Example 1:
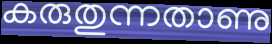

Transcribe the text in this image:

കരുതുന്നതാണു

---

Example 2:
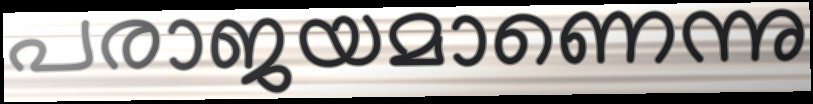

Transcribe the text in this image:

പരാജയമാണെന്നു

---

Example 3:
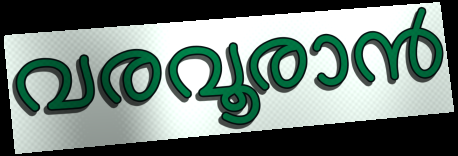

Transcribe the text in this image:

വരവൂരാൻ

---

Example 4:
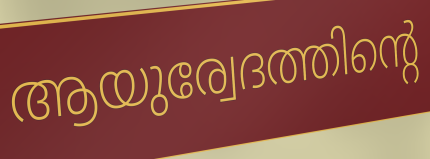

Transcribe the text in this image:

ആയുര്വേദത്തിന്റെ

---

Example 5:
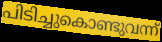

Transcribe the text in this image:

പിടിച്ചുകൊണ്ടുവന്ന്